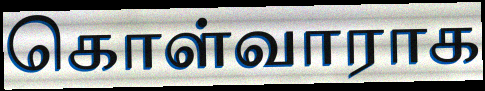
கொள்வாராக